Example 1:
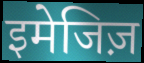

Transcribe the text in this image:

इमेजिज़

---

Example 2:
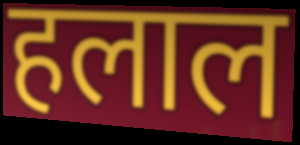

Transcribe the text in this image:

हलाल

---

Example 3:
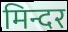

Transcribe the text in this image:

मिन्दर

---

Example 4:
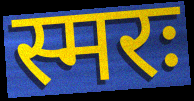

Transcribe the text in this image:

स्मरः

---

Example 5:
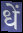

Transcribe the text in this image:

धें